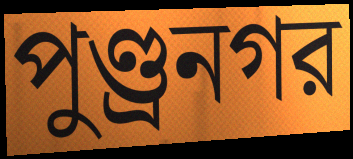
পুণ্ড্রনগর